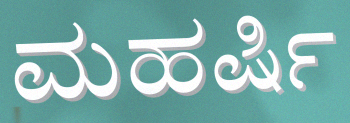
ಮಹರ್ಷಿ